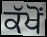
ਕੱਖੋਂ